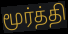
மூர்த்தி